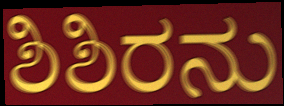
ಶಿಶಿರನು